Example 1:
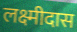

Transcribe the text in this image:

लक्ष्मीदास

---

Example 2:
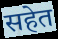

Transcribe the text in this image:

सहेत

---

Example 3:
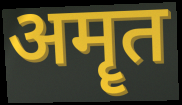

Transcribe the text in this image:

अमॄत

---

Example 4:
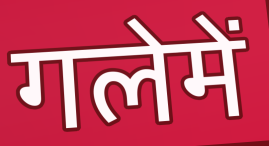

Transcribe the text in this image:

गलेमें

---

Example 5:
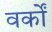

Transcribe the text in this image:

वर्कों